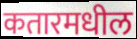
कतारमधील